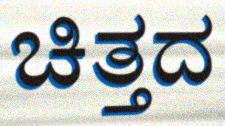
ಚಿತ್ತದ